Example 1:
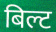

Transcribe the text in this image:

बिल्ट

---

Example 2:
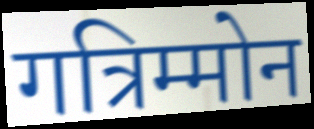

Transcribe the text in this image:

गत्रिम्मोन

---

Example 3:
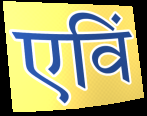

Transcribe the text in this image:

एविं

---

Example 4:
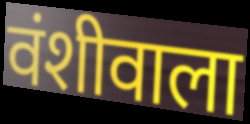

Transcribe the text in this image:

वंशीवाला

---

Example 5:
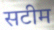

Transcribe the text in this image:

सटीम